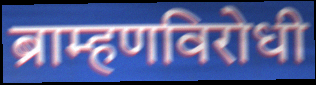
ब्राम्हणविरोधी